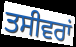
ਤਸੀਵਰਾਂ